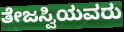
ತೇಜಸ್ವಿಯವರು